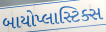
બાયોપ્લાસ્ટિક્સ